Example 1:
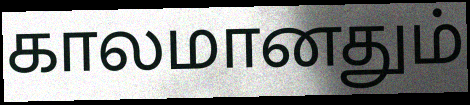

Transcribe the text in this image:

காலமானதும்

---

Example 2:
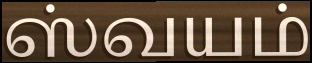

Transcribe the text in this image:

ஸ்வயம்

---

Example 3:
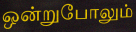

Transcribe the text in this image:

ஒன்றுபோலும்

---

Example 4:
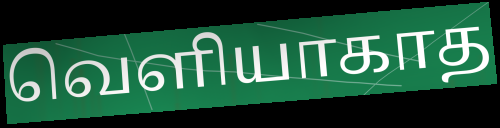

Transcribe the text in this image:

வெளியாகாத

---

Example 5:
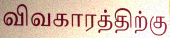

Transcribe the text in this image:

விவகாரத்திற்கு